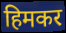
हिमकर